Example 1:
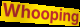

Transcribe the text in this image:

Whooping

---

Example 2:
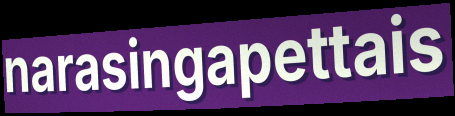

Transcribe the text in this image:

narasingapettais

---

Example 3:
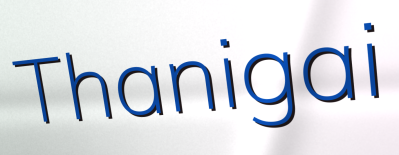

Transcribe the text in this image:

Thanigai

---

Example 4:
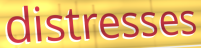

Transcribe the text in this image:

distresses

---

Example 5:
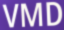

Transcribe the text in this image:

VMD